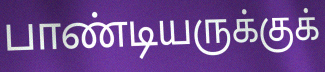
பாண்டியருக்குக்